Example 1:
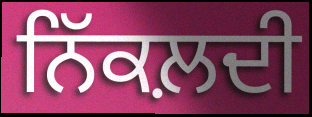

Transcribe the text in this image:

ਨਿੱਕਲ਼ਦੀ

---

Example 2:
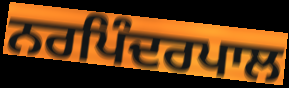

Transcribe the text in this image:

ਨਰਪਿੰਦਰਪਾਲ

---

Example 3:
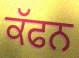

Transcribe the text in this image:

ਕੱਫਨ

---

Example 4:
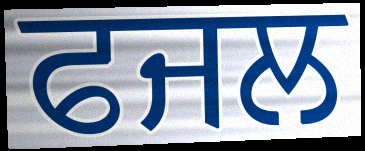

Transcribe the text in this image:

ਫਜਲ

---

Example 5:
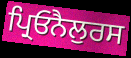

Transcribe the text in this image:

ਪ੍ਰਿਓਨੈਲੁਰਸ